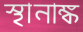
স্থানাঙ্ক